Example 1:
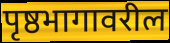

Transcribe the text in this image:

पृष्ठभागावरील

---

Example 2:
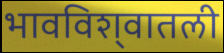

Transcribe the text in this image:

भावविश्वातली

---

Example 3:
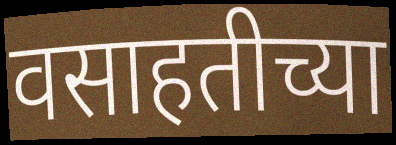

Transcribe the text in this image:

वसाहतीच्या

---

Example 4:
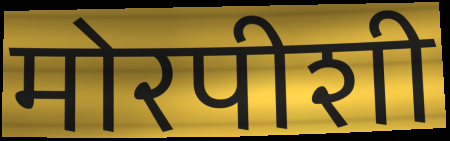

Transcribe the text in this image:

मोरपीशी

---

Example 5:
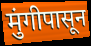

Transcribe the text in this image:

मुंगीपासून